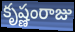
కృష్ణంరాజు